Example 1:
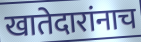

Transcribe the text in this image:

खातेदारांनाच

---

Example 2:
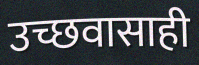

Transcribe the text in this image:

उच्छवासाही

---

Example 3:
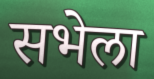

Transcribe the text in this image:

सभेला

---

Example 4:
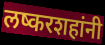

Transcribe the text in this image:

लष्करशहांनी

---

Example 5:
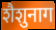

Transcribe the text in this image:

शैशुनाग